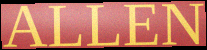
ALLEN